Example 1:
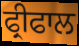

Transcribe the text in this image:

ਫ੍ਰੀਫਾਲ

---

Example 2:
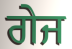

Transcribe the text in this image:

ਗੇਜ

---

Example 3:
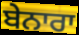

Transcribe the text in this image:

ਬੇਨਾਰਾ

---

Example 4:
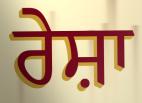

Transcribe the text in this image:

ਰੇਸ਼ਾ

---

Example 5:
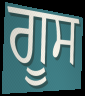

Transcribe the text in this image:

ਗੂਸ